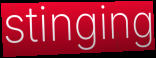
stinging